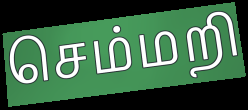
செம்மறி